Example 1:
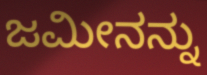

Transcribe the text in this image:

ಜಮೀನನ್ನು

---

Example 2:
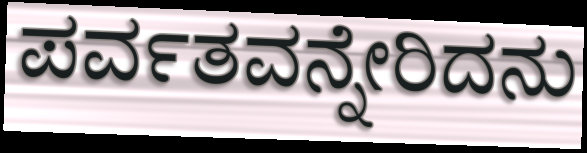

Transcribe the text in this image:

ಪರ್ವತವನ್ನೇರಿದನು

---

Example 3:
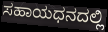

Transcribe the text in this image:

ಸಹಾಯಧನದಲ್ಲಿ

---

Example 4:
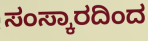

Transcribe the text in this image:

ಸಂಸ್ಕಾರದಿಂದ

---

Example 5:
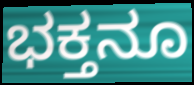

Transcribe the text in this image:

ಭಕ್ತನೂ